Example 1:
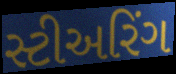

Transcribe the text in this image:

સ્ટીઅરિંગ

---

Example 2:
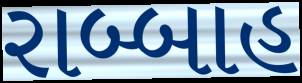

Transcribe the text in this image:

રાબ્બાહ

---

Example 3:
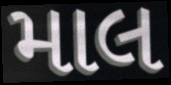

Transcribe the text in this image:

માલ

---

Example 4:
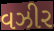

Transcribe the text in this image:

વઝીર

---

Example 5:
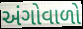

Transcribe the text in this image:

અંગોવાળો